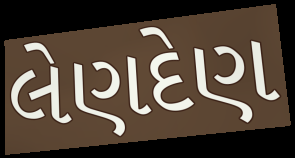
લેણદેણ